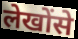
लेखोंसे